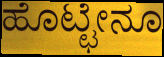
ಹೊಟ್ಟೇನೂ